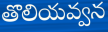
తొలియవ్వన